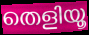
തെളിയൂ